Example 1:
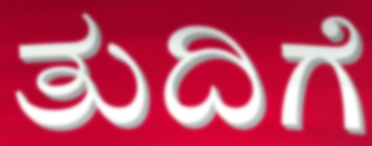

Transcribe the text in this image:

ತುದಿಗೆ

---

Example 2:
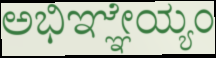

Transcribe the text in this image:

ಅಭಿಞ್ಞೇಯ್ಯಂ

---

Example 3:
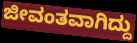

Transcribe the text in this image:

ಜೀವಂತವಾಗಿದ್ದು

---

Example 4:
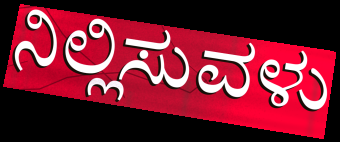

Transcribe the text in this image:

ನಿಲ್ಲಿಸುವಳು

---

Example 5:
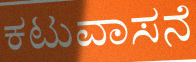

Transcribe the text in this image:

ಕಟುವಾಸನೆ